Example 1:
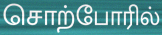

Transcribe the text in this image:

சொற்போரில்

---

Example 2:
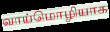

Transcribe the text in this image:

வாய்மொழியாக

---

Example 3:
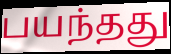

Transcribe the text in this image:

பயந்தது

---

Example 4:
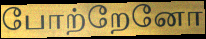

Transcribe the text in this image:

போற்றேனோ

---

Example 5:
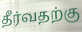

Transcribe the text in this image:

தீர்வதற்கு